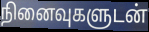
நினைவுகளுடன்